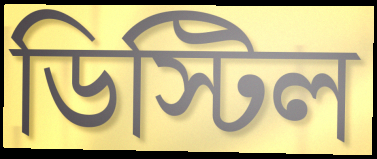
ডিস্টিল